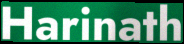
Harinath